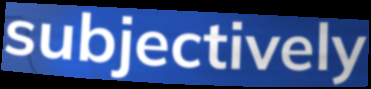
subjectively